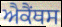
ਐਕੈਂਥਸ